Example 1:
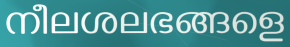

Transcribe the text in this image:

നീലശലഭങ്ങളെ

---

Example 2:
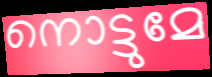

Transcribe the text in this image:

നൊട്ടുമേ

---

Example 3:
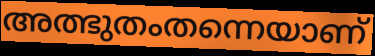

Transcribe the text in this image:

അത്ഭുതംതന്നെയാണ്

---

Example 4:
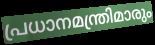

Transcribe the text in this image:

പ്രധാനമന്ത്രിമാരും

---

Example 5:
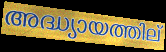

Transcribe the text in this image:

അദ്ധ്യായത്തില്